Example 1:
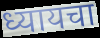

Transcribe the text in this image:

ध्यायचा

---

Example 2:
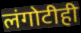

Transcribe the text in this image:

लंगोटीही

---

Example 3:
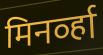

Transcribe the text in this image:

मिनर्व्हा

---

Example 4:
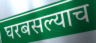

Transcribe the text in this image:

घरबसल्याच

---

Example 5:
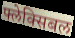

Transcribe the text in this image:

फ्लेक्सिबल